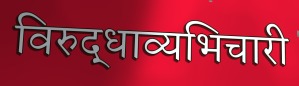
विरुद्धाव्यभिचारी